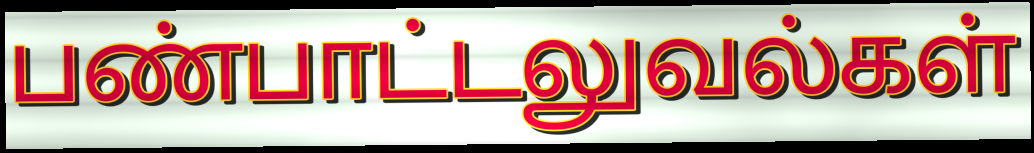
பண்பாட்டலுவல்கள்